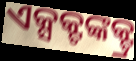
ଏକ୍ସକ୍ଟଙ୍କକ୍ଟ୍ର